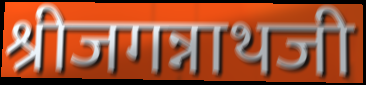
श्रीजगन्नाथजी